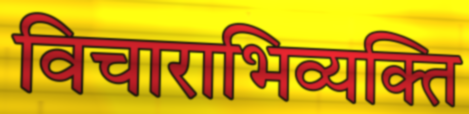
विचाराभिव्यक्ति